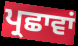
ਪ੍ਰਛਾਵਾਂ